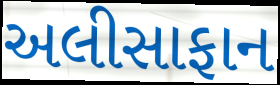
અલીસાફાન